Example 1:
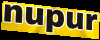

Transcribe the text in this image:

nupur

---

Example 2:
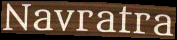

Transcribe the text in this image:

Navratra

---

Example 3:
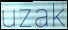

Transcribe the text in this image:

uzak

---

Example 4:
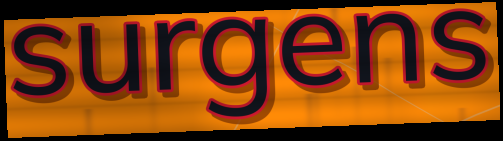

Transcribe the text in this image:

surgens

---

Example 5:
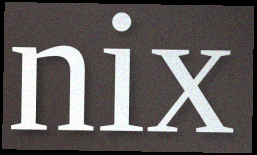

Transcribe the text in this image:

nix